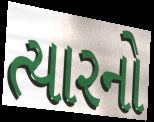
ત્યારનો